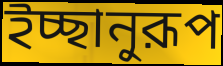
ইচ্ছানুরূপ